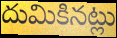
దుమికినట్లు